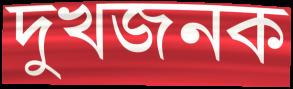
দুখজনক